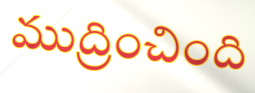
ముద్రించింది